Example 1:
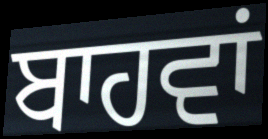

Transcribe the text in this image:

ਬਾਹਵਾਂ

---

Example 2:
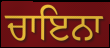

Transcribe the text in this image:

ਚਾਇਨਾ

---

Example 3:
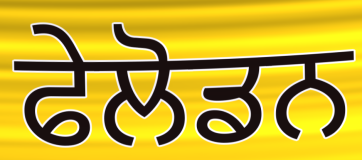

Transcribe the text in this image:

ਫੇਲੋਡਨ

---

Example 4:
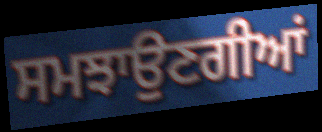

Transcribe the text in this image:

ਸਮਝਾਉਣਗੀਆਂ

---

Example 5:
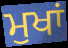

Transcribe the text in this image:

ਮੁਖਾਂ